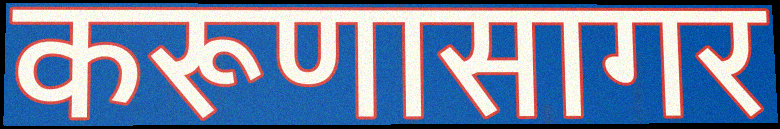
करूणासागर